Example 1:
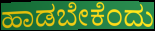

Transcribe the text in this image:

ಹಾಡಬೇಕೆಂದು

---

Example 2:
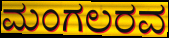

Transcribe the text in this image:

ಮಂಗಲರವ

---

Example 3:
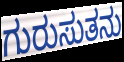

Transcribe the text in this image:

ಗುರುಸುತನು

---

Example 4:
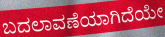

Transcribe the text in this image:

ಬದಲಾವಣೆಯಾಗಿದೆಯೇ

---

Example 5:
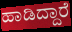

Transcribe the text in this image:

ಹಾಡಿದ್ದಾರೆ